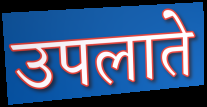
उपलाते